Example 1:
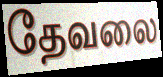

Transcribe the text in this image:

தேவலை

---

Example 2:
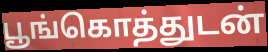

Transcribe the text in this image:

பூங்கொத்துடன்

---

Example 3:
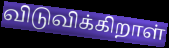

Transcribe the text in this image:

விடுவிக்கிறாள்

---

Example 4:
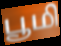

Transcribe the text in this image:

பூமி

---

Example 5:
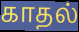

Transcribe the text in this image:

காதல்